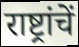
राष्ट्रांचें